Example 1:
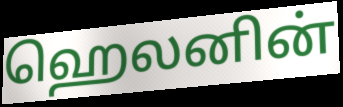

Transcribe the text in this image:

ஹெலனின்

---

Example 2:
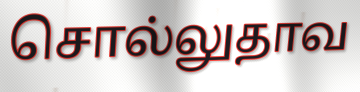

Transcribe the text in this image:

சொல்லுதாவ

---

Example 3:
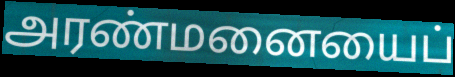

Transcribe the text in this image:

அரண்மனையைப்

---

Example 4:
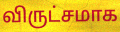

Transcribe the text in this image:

விருட்சமாக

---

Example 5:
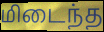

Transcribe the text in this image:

மிடைந்த